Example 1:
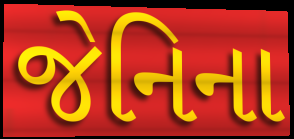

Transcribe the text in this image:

જેનિના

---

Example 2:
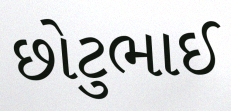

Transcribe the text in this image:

છોટુભાઈ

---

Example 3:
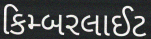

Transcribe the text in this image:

કિમ્બરલાઈટ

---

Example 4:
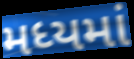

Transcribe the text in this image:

મધ્યમાં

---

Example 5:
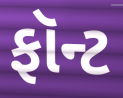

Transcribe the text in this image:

ફૉન્ટ